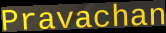
Pravachan